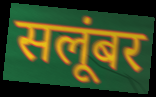
सलूंबर